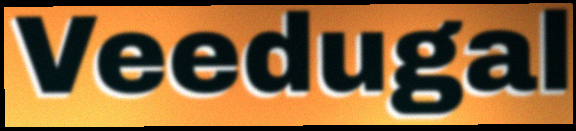
Veedugal